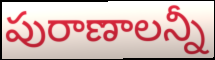
పురాణాలన్నీ